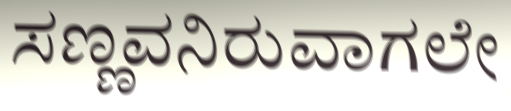
ಸಣ್ಣವನಿರುವಾಗಲೇ